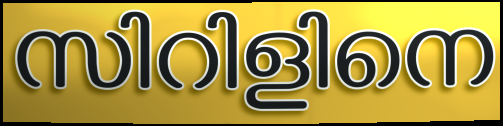
സിറിളിനെ